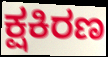
ಕ್ಷಕಿರಣ